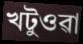
খটুওৱা